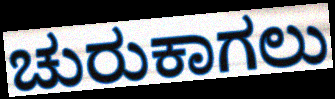
ಚುರುಕಾಗಲು